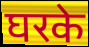
घरके